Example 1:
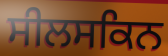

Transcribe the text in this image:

ਸੀਲਸਕਿਨ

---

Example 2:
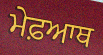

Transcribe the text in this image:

ਮੇਫ਼ਆਥ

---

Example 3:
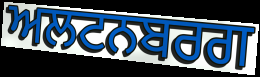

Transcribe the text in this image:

ਅਲਟਨਬਰਗ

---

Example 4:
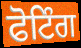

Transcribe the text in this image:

ਫੋਟਿੰਗ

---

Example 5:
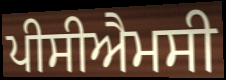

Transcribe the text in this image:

ਪੀਸੀਐਮਸੀ